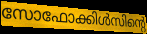
സോഫോക്കിൾസിന്റെ